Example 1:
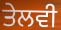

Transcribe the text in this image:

ਤੇਲਵੀ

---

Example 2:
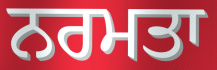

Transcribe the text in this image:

ਨਰਮਤਾ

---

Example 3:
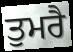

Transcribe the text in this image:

ਤੁਮਰੈ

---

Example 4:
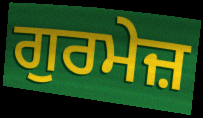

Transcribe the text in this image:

ਗੁਰਮੇਜ਼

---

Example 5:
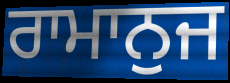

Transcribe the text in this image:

ਰਾਮਾਨੁਜ